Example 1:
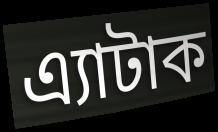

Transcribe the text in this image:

এ্যাটাক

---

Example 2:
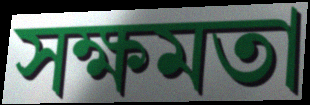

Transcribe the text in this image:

সক্ষমতা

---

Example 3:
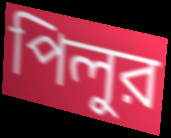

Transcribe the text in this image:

পিলুর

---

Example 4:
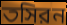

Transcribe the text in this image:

তসিরন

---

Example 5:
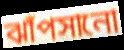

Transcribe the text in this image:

ঝাঁপসানো